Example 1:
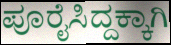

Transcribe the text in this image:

ಪೂರೈಸಿದ್ದಕ್ಕಾಗಿ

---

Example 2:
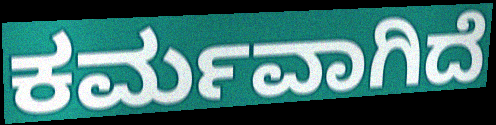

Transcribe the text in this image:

ಕರ್ಮವಾಗಿದೆ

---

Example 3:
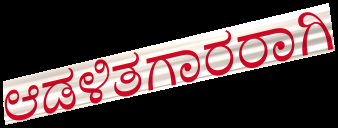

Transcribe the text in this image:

ಆಡಳಿತಗಾರರಾಗಿ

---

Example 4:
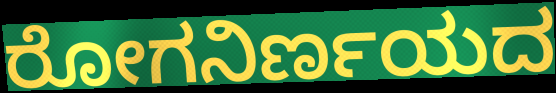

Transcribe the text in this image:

ರೋಗನಿರ್ಣಯದ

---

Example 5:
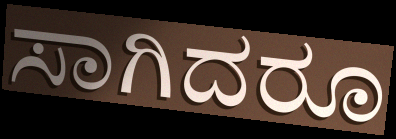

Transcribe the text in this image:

ಸಾಗಿದರೂ